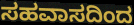
ಸಹವಾಸದಿಂದ